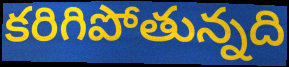
కరిగిపోతున్నది